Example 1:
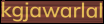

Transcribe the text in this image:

kgjawarlal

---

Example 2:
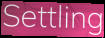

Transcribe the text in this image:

Settling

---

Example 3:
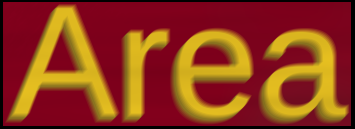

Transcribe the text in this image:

Area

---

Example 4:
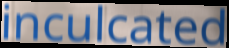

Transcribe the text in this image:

inculcated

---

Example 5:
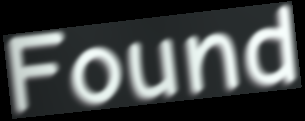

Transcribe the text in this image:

Found